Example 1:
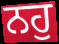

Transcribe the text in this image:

ਨਹੁ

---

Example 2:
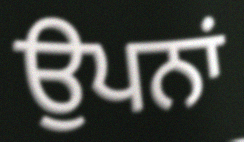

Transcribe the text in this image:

ਉਪਨਾਂ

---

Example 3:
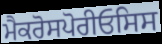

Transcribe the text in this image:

ਮੈਕਰੋਸਪੋਰੀਓਸਿਸ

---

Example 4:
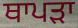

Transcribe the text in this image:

ਥਾਪੜਾ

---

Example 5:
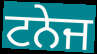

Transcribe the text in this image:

ਟਨੇਜ